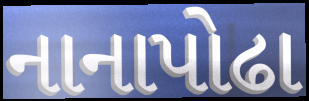
નાનાપોઢા